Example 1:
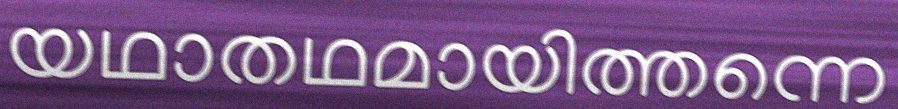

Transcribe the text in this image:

യഥാതഥമായിത്തന്നെ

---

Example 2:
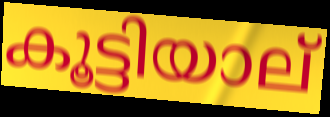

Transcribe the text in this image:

കൂട്ടിയാല്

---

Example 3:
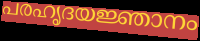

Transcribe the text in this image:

പരഹൃദയജ്ഞാനം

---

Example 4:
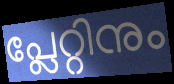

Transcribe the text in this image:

പ്ലേറ്റിനും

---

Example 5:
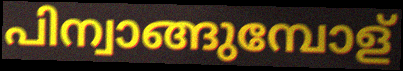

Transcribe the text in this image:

പിന്വാങ്ങുമ്പോള്